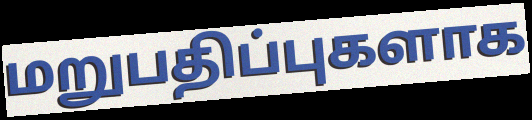
மறுபதிப்புகளாக